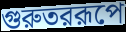
গুরুতররূপে